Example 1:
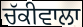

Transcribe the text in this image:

ਚੱਕੀਵਾਲਾ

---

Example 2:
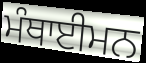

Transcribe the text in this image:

ਮੰਥਾਈਮਨ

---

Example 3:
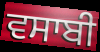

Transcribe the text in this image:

ਵਸਾਬੀ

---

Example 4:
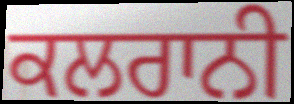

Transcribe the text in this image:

ਕਲਰਾਨੀ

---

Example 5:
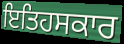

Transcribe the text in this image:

ਇਤਿਹਸਕਾਰ